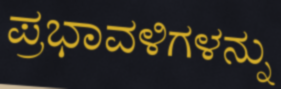
ಪ್ರಭಾವಳಿಗಳನ್ನು